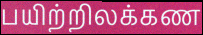
பயிற்றிலக்கண